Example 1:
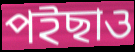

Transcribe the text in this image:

পইছাও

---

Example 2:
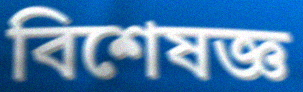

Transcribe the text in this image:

বিশেষজ্ঞ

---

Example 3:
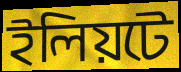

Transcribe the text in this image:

ইলিয়টে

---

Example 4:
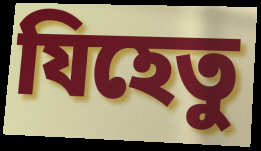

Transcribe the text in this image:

যিহেতু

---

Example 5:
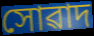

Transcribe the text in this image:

সোৱাদ